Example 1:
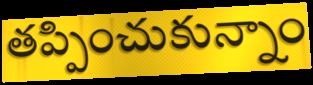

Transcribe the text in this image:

తప్పించుకున్నాం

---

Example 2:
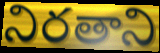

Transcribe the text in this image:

నిరతాని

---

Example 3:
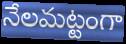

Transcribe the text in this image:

నేలమట్టంగా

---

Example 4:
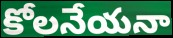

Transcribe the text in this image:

కోలనేయనా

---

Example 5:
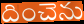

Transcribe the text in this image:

దించెను